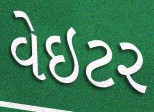
વેઇટર